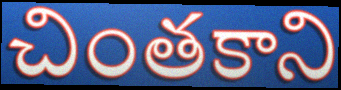
చింతకాని